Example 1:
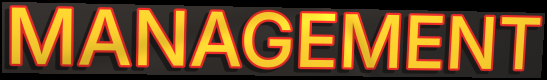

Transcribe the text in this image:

MANAGEMENT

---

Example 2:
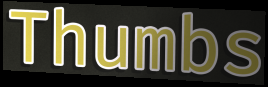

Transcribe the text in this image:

Thumbs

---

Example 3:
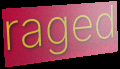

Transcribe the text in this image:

raged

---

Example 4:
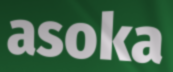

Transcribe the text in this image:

asoka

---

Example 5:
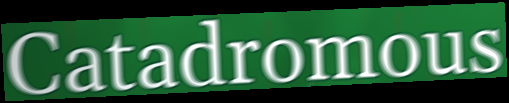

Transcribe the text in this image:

Catadromous